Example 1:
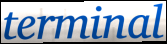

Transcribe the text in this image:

terminal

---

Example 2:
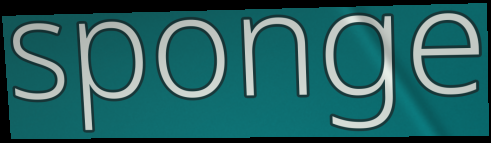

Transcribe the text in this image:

sponge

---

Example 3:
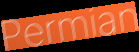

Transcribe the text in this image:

Permian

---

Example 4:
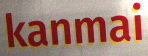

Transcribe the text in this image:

kanmai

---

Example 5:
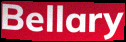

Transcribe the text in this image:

Bellary